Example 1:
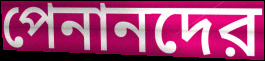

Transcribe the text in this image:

পেনানদের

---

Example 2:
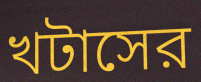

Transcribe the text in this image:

খটাসের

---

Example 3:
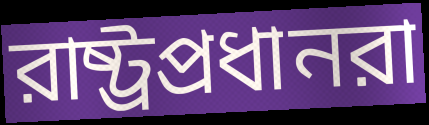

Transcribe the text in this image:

রাষ্ট্রপ্রধানরা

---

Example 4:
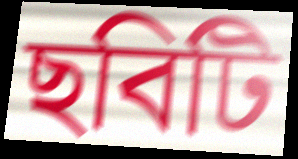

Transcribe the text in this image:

ছবিটি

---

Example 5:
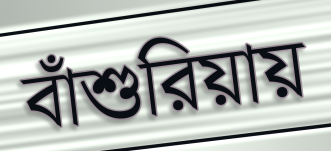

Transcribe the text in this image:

বাঁশুরিয়ায়